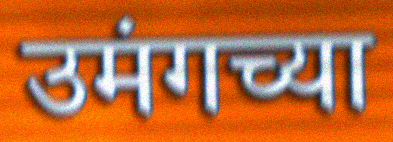
उमंगच्या